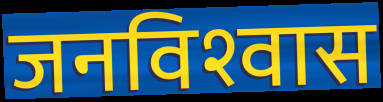
जनविश्वास